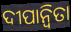
ଦୀପାନ୍ୱିତା